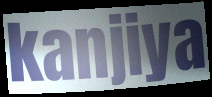
kanjiya